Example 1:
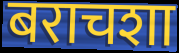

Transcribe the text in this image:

बराचशा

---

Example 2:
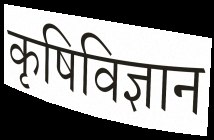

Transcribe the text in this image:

कृषिविज्ञान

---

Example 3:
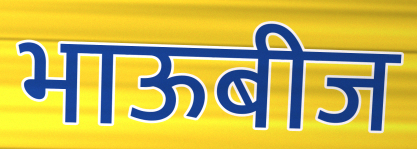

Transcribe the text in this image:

भाऊबीज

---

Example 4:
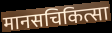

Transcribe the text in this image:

मानसचिकित्सा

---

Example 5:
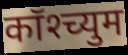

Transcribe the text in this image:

कॉश्च्युम